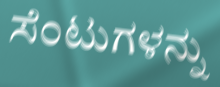
ಸೆಂಟುಗಳನ್ನು